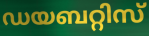
ഡയബറ്റിസ്